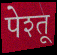
पेश्तू